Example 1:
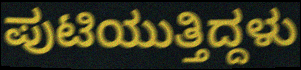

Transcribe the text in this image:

ಪುಟಿಯುತ್ತಿದ್ದಳು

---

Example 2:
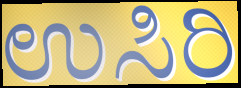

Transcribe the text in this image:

ಉಸಿರಿ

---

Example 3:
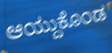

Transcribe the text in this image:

ಆಯ್ದುಕೊಂಡ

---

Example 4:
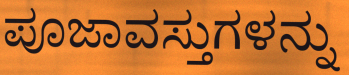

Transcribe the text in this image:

ಪೂಜಾವಸ್ತುಗಳನ್ನು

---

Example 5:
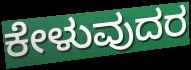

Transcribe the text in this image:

ಕೇಳುವುದರ